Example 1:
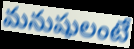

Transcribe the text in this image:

మనుషులంటే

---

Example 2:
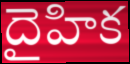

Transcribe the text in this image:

దైహిక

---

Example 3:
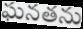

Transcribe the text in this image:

ఘనతను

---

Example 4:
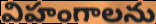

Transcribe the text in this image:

విహంగాలను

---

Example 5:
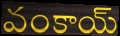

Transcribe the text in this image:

వంకాయ్